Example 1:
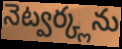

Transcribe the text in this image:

నెట్వర్క్లను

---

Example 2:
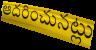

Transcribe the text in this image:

ఆదరించునట్లు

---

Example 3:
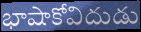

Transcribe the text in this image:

భాషాకోవిదుడు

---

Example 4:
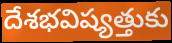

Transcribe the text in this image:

దేశభవిష్యత్తుకు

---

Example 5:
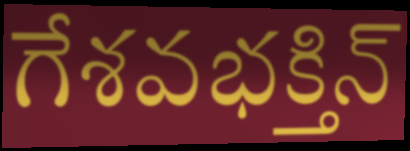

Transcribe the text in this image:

గేశవభక్తిన్